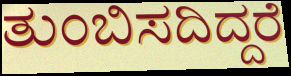
ತುಂಬಿಸದಿದ್ದರೆ